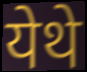
येथे